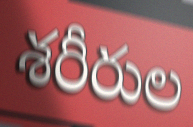
శరీరుల